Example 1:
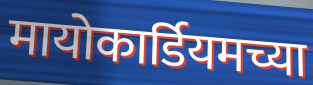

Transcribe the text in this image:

मायोकार्डियमच्या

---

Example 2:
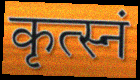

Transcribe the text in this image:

कृत्स्नं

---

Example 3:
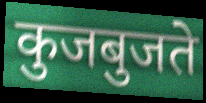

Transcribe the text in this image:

कुजबुजते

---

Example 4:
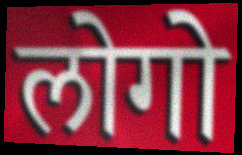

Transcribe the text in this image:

लोगो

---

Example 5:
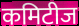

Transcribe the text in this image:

कमिटीज